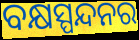
ବକ୍ଷସ୍ପନ୍ଦନର